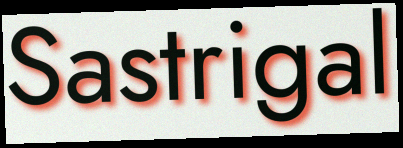
Sastrigal